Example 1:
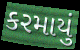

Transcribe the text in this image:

કરમાયું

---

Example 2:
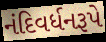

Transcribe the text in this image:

નંદિવર્ધનરૂપે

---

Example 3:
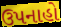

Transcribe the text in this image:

ઉપનાહો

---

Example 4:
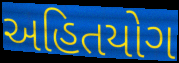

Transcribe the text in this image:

અહિતયોગ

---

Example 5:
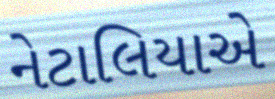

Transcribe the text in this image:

નેટાલિયાએ